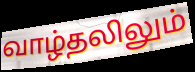
வாழ்தலிலும்